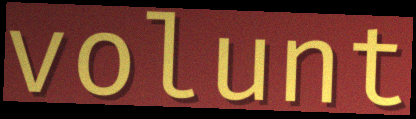
volunt